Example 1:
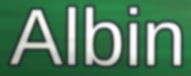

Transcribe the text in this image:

Albin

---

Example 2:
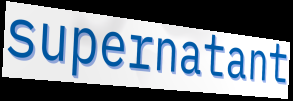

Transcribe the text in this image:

supernatant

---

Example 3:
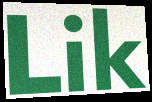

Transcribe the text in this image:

Lik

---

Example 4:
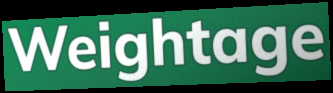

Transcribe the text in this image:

Weightage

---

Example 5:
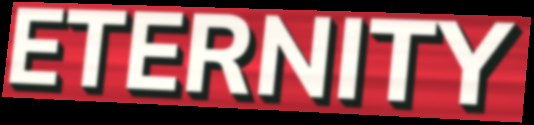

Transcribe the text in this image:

ETERNITY